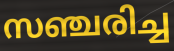
സഞ്ചരിച്ച